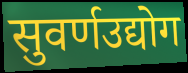
सुवर्णउद्योग